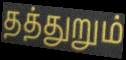
தத்துறும்